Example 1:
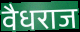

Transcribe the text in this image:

वैधराज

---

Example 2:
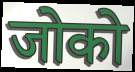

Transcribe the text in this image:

जोको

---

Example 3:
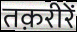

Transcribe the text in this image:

तक़रीरें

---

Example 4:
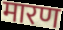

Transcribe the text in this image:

मारण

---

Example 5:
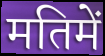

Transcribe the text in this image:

मतिमें